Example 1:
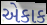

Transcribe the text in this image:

એકાક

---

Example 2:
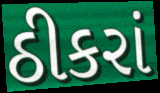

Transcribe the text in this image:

ઠીકરાં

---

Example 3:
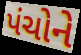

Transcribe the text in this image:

પંચોને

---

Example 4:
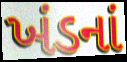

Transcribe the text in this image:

ખંડનાં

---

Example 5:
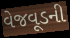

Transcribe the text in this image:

વેજવૂડની